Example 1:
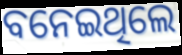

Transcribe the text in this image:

ବନେଇଥିଲେ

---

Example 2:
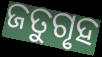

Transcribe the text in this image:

ଜତୁଗୃହ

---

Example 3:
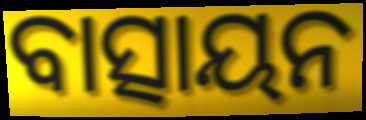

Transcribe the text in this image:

ବାତ୍ସାୟନ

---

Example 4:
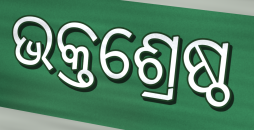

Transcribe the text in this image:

ଭକ୍ତଶ୍ରେଷ୍ଠ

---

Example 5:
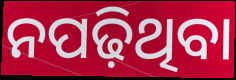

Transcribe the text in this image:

ନପଢ଼ିଥିବା